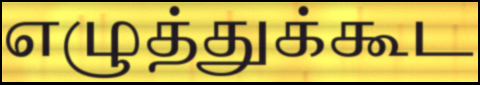
எழுத்துக்கூட